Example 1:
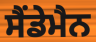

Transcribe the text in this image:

ਸੈਂਡੇਮੈਨ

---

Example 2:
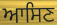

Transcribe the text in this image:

ਆਸਿਣ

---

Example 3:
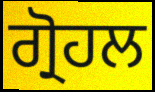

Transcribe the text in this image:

ਗ੍ਰੋਹਲ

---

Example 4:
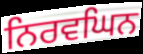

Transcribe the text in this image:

ਨਿਰਵਘਿਨ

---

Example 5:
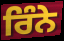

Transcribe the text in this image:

ਰਿੰਨੇ